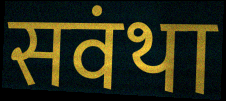
सवंथा